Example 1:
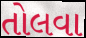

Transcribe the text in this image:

તોલવા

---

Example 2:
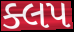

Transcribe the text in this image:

ક્લપ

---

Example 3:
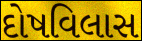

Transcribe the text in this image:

દોષવિલાસ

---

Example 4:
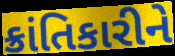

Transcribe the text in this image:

ક્રાંતિકારીને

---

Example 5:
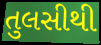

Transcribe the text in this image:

તુલસીથી